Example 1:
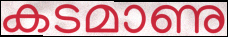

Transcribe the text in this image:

കടമാണു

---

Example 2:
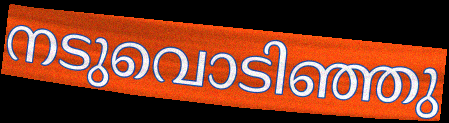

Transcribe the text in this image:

നടുവൊടിഞ്ഞു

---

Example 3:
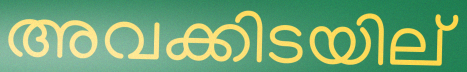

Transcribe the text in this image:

അവക്കിടയില്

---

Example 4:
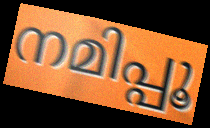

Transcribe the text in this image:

നമിപ്പൂ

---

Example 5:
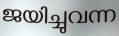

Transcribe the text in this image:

ജയിച്ചുവന്ന